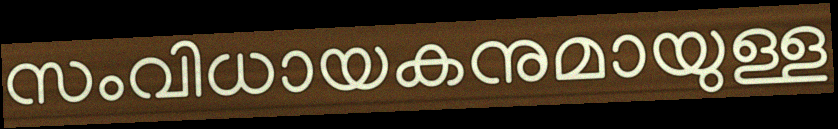
സംവിധായകനുമായുള്ള